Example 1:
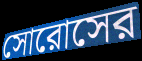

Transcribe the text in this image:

সোরোসের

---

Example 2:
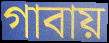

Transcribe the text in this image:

গাবায়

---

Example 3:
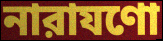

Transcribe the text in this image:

নারাযণো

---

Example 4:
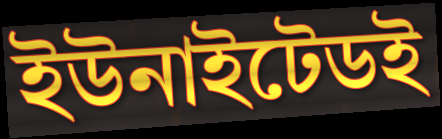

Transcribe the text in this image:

ইউনাইটেডই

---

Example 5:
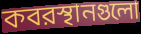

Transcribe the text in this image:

কবরস্থানগুলো